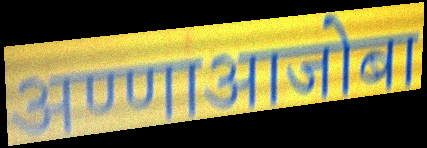
अण्णाआजोबा